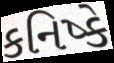
કનિષ્કે